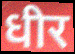
धीर